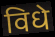
विधे